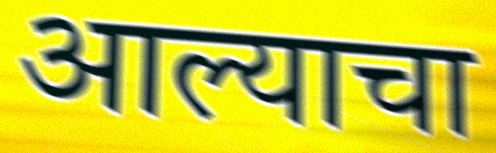
आल्‍याचा